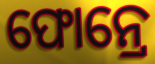
ଫୋନ୍ରେ